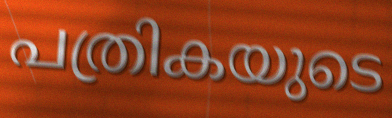
പത്രികയുടെ